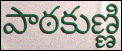
పాఠకుణ్ణి